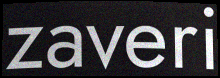
zaveri